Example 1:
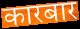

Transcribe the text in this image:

कारबार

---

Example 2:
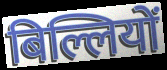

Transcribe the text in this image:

बिल्लियों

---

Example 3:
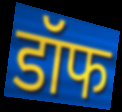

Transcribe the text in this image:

डॉफ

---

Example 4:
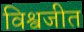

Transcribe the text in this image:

विश्वजीत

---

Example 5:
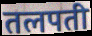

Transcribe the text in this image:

तलपती